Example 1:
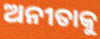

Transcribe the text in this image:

ଅନୀତାକୁ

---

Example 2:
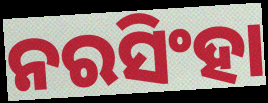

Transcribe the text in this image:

ନରସିଂହା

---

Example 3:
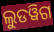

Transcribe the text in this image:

ଲୁଡୱିଗ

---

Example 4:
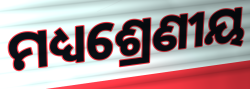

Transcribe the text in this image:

ମଧ୍ୟଶ୍ରେଣୀୟ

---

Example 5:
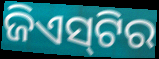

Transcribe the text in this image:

ଜିଏସ୍‌ଟିର